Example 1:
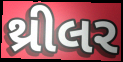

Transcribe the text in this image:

થ્રીલર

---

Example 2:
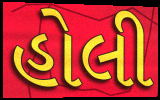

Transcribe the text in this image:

હોલી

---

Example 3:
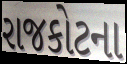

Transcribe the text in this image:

રાજકોટના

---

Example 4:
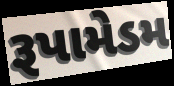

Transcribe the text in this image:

રૂપામેડમ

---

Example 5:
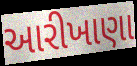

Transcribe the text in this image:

આરીખાણા